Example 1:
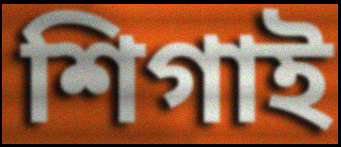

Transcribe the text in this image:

শিগাই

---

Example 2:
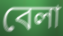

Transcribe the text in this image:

বেলা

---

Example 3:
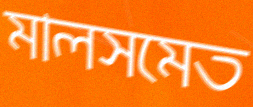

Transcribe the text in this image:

মালসমেত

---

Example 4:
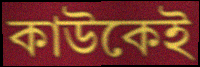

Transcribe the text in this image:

কাউকেই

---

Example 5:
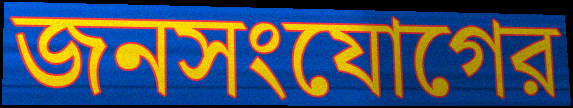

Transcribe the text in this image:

জনসংযোগের